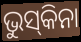
ଭୁସ୍‌କିନା